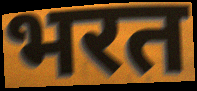
भरत